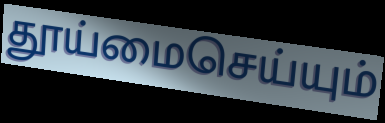
தூய்மைசெய்யும்